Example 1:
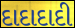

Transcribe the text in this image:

દાદાદાદી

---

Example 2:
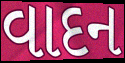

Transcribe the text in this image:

વાદન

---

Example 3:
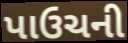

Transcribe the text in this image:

પાઉચની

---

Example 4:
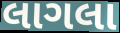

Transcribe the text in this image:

લાગલા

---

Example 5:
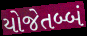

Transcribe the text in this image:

યોજેતબ્બં